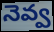
నెవ్వ